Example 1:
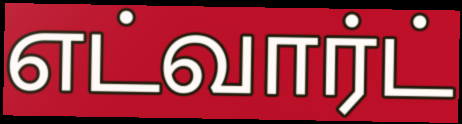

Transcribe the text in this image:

எட்வார்ட்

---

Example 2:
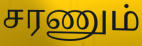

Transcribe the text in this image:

சரணும்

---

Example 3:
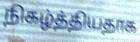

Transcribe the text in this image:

நிகழ்த்தியதாக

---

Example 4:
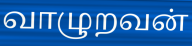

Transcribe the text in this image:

வாழுறவன்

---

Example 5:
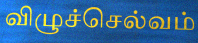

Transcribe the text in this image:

விழுச்செல்வம்